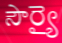
సౌర్యై